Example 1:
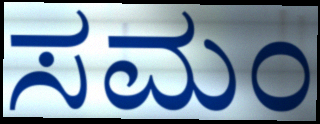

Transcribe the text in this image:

ಸಮಂ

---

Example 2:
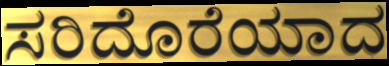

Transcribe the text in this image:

ಸರಿದೊರೆಯಾದ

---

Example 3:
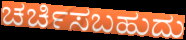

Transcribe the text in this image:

ಚರ್ಚಿಸಬಹುದು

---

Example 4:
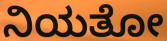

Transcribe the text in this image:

ನಿಯತೋ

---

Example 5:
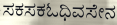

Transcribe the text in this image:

ಸಕಸಕಓಧಿವಸೇನ